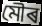
মৌৰ